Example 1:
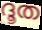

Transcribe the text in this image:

ദൂത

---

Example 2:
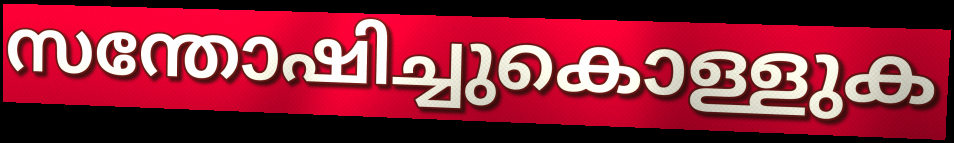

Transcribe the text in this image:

സന്തോഷിച്ചുകൊള്ളുക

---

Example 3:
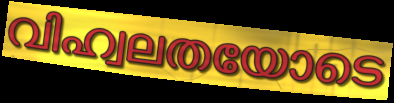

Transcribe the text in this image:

വിഹ്വലതയോടെ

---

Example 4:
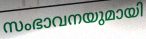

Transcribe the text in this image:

സംഭാവനയുമായി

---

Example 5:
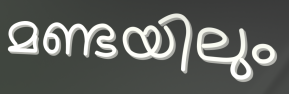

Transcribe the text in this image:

മണ്ടയിലും